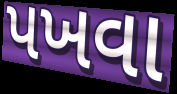
પખવા